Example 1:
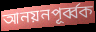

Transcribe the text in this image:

আনয়নপূর্ব্বক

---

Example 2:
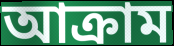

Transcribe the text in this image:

আক্রাম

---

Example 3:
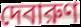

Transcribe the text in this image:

দেবারুণ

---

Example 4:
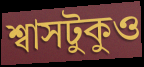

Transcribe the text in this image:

শ্বাসটুকুও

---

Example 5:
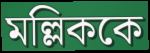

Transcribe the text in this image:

মল্লিককে